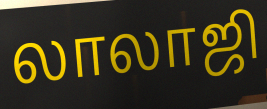
லாலாஜி